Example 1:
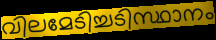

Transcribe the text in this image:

വിലമേടിച്ചടിസ്ഥാനം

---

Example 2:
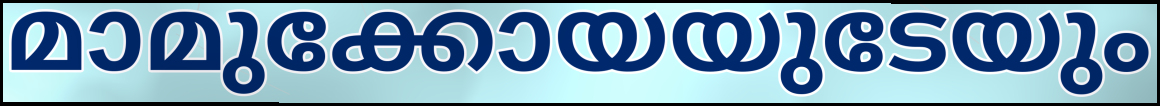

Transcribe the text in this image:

മാമുക്കോയയുടേയും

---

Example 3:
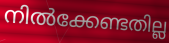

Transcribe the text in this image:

നിൽക്കേണ്ടതില്ല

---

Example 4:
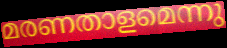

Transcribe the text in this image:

മരണതാളമെന്നു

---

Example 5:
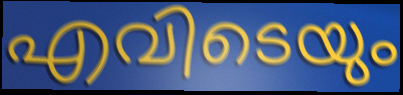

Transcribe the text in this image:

എവിടെയും